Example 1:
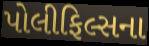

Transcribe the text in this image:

પોલીફિલ્સના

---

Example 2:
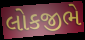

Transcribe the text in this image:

લોકજીભે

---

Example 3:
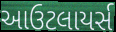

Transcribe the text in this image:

આઉટલાયર્સ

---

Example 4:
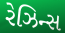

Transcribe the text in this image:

રેઝિન્સ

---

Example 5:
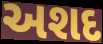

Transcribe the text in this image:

અશદ